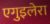
एगुइलेरा